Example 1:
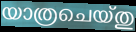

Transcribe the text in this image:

യാത്രചെയ്തു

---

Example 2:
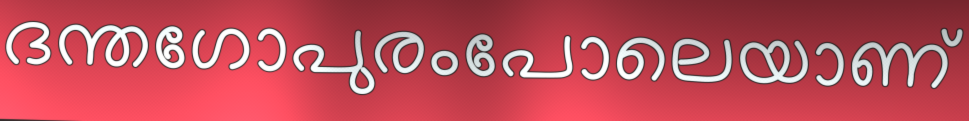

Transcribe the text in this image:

ദന്തഗോപുരംപോലെയാണ്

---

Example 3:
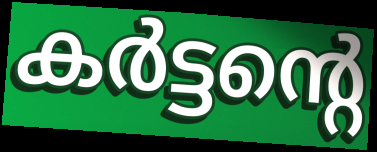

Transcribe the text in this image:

കർട്ടന്റെ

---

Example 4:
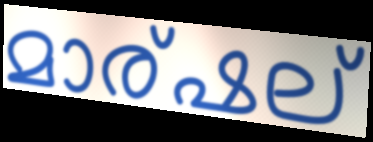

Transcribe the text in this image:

മാര്ഷല്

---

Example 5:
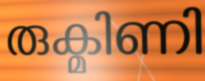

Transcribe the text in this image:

രുക്മിണി